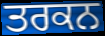
ਤਰਕਨ